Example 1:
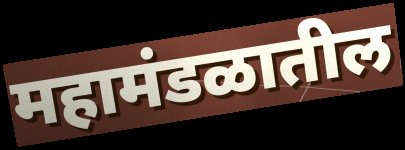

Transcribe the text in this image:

महामंडळातील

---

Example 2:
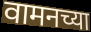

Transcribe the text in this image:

वामनच्या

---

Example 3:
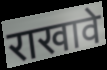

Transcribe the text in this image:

राखावे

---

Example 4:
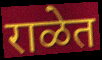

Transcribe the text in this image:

राळेत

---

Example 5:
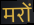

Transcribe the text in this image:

मरों